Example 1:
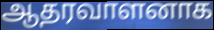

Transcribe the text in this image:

ஆதரவாளனாக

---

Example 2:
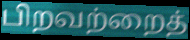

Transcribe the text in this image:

பிறவற்றைத்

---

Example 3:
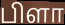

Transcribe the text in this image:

பிளா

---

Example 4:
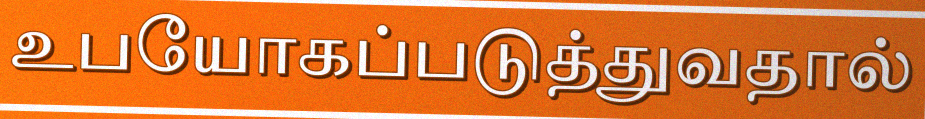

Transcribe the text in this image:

உபயோகப்படுத்துவதால்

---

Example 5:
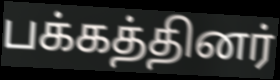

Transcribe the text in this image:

பக்கத்தினர்